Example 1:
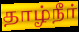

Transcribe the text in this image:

தாழ்நீர்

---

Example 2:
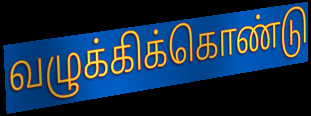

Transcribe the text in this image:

வழுக்கிக்கொண்டு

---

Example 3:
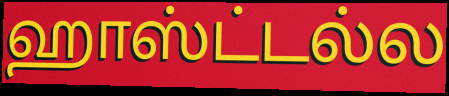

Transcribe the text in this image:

ஹாஸ்ட்டல்ல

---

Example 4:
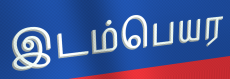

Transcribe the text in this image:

இடம்பெயர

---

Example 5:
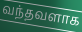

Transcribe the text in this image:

வந்தவளாக